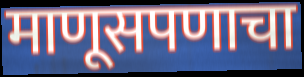
माणूसपणाचा